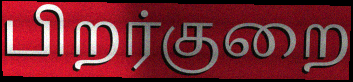
பிறர்குறை